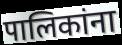
पालिकांना